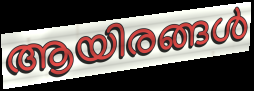
ആയിരങ്ങൾ